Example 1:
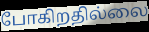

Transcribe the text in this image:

போகிறதில்லை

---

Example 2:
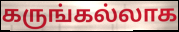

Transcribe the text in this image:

கருங்கல்லாக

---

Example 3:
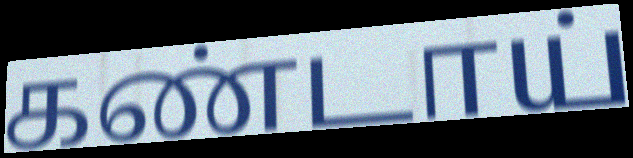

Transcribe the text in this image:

கண்டாய்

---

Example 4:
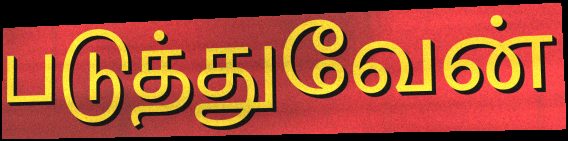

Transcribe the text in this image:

படுத்துவேன்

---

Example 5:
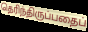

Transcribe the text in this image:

தெரிந்திருப்பதைப்